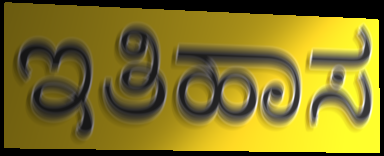
ಇತಿಹಾಸ